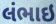
લંભાઇ